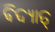
ଵିଦ୍ଯାତ୍